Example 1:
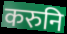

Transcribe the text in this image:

करुनि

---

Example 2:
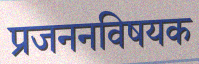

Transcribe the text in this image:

प्रजननविषयक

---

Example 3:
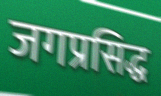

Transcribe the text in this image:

जगप्रसिद्ध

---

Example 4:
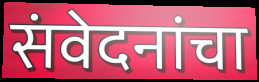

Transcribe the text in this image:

संवेदनांचा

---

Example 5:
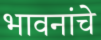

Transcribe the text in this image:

भावनांचे